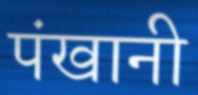
पंखानी